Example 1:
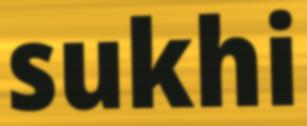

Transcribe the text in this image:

sukhi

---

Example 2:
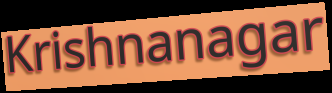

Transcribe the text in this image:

Krishnanagar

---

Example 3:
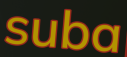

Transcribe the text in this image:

suba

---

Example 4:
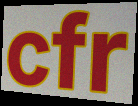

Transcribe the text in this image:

cfr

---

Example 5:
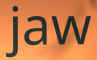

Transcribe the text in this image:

jaw